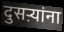
दुसऱ्‍यांना